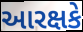
આરક્ષકે